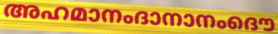
അഹമാനംദാനാനംദൌ